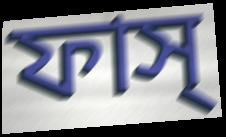
ফাস্